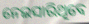
ନେଇସାରିଥିବେ